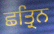
ਛਤ੍ਰਿਨ